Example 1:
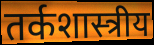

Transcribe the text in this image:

तर्कशास्त्रीय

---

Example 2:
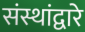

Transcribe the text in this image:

संस्थांद्वारे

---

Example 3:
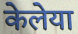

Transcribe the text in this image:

केलेया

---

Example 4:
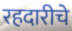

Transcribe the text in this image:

रहदारीचे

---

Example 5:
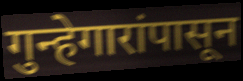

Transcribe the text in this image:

गुन्हेगारांपासून